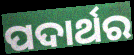
ପଦାର୍ଥର